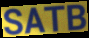
SATB